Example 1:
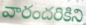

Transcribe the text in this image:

వారందరికిని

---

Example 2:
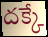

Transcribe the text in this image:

దక్కే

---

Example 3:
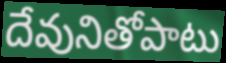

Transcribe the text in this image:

దేవునితోపాటు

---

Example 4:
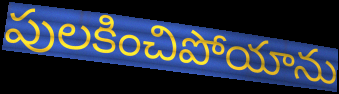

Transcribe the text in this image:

పులకించిపోయాను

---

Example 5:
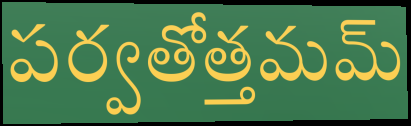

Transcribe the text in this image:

పర్వతోత్తమమ్